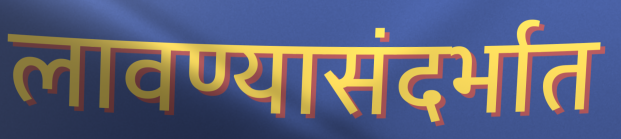
लावण्यासंदर्भात